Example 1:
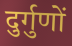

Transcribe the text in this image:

दुर्गुणों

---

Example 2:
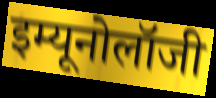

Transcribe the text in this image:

इम्यूनोलॉजी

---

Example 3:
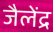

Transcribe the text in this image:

जैलेंद्र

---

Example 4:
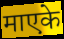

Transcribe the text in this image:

माएके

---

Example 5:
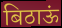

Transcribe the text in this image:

बिठाऊं